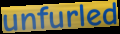
unfurled